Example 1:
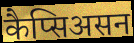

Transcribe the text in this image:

कैप्सिअसन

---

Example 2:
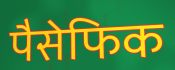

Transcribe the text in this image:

पैसेफिक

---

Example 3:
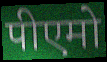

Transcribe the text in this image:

पीएमो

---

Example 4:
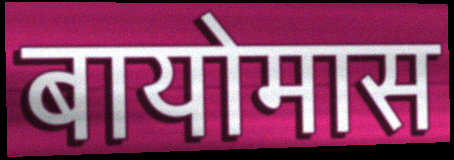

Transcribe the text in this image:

बायोमास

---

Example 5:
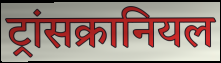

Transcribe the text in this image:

ट्रांसक्रानियल